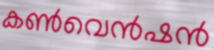
കൺവെൻഷൻ